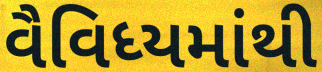
વૈવિધ્યમાંથી